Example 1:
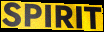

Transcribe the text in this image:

SPIRIT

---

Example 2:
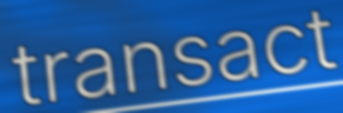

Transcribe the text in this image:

transact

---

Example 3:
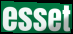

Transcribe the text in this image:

esset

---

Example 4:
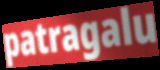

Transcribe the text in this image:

patragalu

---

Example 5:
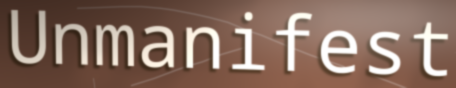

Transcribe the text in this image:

Unmanifest